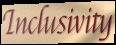
Inclusivity